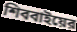
শিববাইয়ের